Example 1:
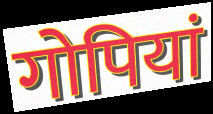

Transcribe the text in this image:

गोपियां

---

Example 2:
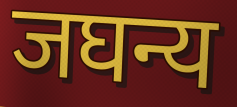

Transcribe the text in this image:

जघन्य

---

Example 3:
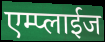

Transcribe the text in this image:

एम्प्लाईज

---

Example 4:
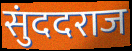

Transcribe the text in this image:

सुंददराज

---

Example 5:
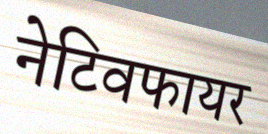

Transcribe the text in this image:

नेटिवफायर